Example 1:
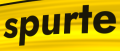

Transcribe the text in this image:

spurte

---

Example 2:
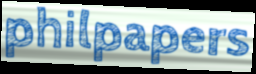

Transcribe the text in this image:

philpapers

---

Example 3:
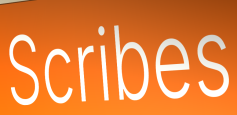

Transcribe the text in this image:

Scribes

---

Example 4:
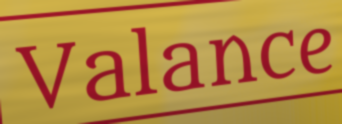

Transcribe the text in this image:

Valance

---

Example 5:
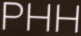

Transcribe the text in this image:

PHH